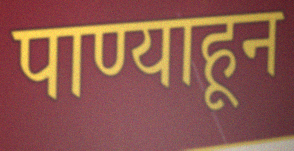
पाण्याहून